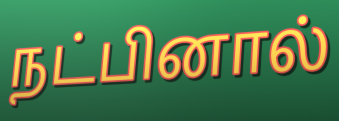
நட்பினால்